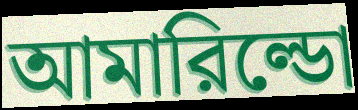
আমারিল্ডো